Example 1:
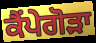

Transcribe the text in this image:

ਕੈਂਪੇਗੋੜਾ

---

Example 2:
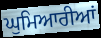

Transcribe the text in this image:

ਘੁਮਿਆਰੀਆਂ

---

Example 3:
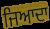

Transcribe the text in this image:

ਜਿਆਦਾ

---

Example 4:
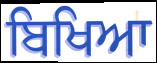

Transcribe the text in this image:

ਬਿਖਿਆ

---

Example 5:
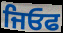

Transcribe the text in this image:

ਜਿਓਫ